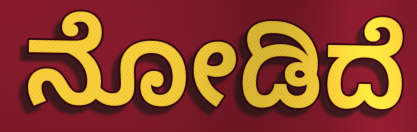
ನೋಡಿದೆ